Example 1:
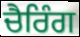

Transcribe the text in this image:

ਚੈਰਿੰਗ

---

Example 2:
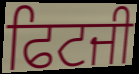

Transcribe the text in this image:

ਫਿਟਜੀ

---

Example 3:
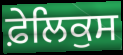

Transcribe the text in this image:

ਫ਼ੇਲਿਕੁਸ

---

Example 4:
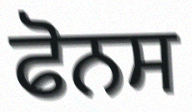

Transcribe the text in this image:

ਫੋਨਸ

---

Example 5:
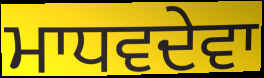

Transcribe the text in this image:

ਮਾਧਵਦੇਵਾ